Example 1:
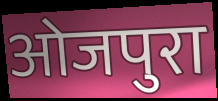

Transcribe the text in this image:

ओजपुरा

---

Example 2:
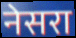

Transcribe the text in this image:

नेसरा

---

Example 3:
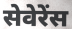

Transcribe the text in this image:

सेवेरेंस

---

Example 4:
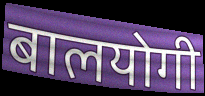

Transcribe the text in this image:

बालयोगी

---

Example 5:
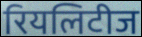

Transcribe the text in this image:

रियलिटीज